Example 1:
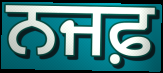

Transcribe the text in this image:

ਨਜਫ਼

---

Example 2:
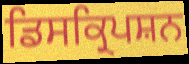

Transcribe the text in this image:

ਡਿਸਕ੍ਰਿਪਸ਼ਨ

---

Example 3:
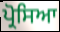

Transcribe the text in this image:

ਪ੍ਰੋਸਿਆ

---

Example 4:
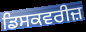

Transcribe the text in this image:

ਡਿਸਕਵਰੀਜ਼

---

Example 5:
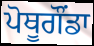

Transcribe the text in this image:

ਪੋਥੂਗੌਂਡਾ